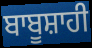
ਬਾਬੂਸ਼ਾਹੀ